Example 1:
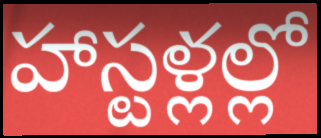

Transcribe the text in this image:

హాస్టళ్లల్లో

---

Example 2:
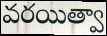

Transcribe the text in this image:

వరయిత్వా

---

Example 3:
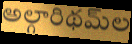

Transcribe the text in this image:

అల్గారిథమ్‌ల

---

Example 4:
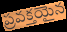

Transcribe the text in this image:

ప్రవక్తయైన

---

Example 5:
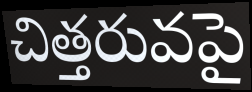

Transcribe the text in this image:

చిత్తరువపై